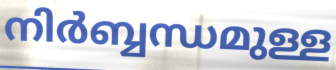
നിർബ്ബന്ധമുള്ള